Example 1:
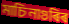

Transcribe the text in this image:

মাচিনাগুৰিৰ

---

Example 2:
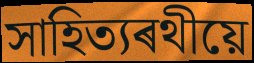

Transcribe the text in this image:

সাহিত্যৰথীয়ে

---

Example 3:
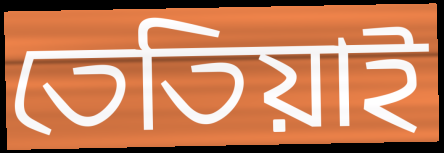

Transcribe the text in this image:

তেতিয়াই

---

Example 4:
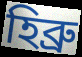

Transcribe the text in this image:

হিব্ৰু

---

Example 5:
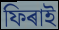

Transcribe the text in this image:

ফিৰাই